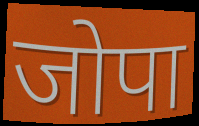
जोपा